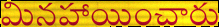
మినహాయించారు